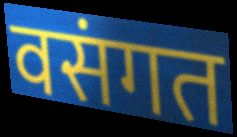
वसंगत